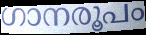
ഗാനരൂപം